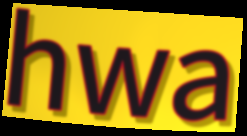
hwa